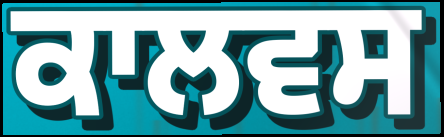
ਕਾਲਵਸ